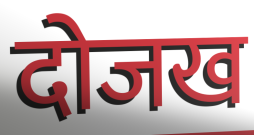
दोजख